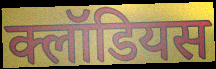
क्लॉडियस